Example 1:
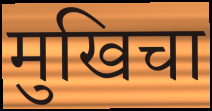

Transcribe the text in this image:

मुखिचा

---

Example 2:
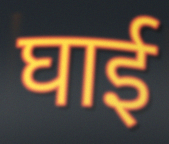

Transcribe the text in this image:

घाई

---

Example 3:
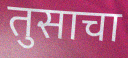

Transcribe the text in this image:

तुसाचा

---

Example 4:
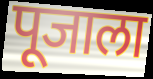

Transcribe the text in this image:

पूजाला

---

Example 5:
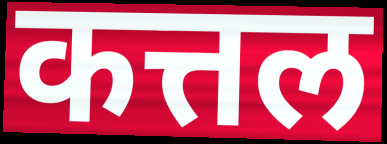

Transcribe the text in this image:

कत्तल